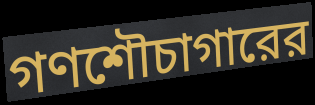
গণশৌচাগারের